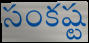
సంకష్ట